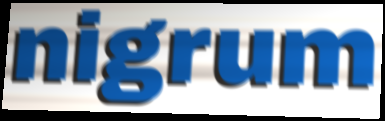
nigrum